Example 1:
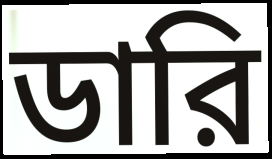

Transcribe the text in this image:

ডারি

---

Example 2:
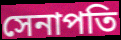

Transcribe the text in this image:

সেনাপতি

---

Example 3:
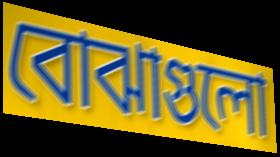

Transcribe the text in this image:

বোঝাগুলো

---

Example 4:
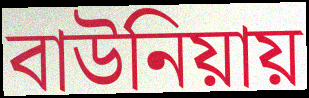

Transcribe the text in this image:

বাউনিয়ায়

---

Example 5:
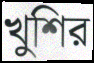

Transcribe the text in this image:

খুশির